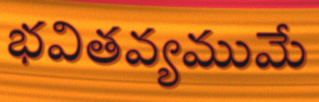
భవితవ్యముమే